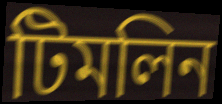
টিমলিন